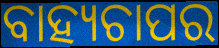
ବାହ୍ୟଚାପର